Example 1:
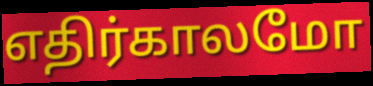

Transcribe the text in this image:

எதிர்காலமோ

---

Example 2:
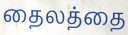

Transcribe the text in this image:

தைலத்தை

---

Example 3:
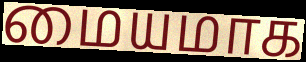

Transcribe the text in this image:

மையமாக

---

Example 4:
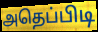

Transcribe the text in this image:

அதெப்பிடி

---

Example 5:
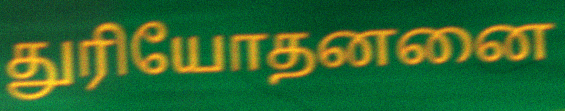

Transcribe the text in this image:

துரியோதனனை